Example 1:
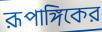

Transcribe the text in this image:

রূপাঙ্গিকের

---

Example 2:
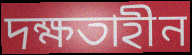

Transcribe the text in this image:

দক্ষতাহীন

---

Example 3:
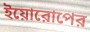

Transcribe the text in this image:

ইয়োরোপের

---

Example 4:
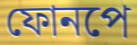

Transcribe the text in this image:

ফোনপে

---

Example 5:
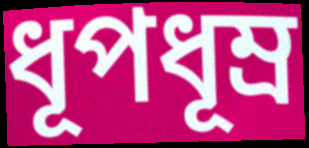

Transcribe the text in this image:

ধূপধূম্র